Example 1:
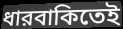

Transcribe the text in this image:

ধারবাকিতেই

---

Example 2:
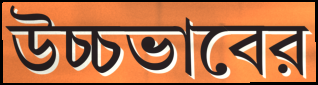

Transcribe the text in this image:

উচ্চভাবের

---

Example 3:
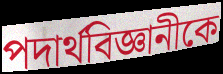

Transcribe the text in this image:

পদার্থবিজ্ঞানীকে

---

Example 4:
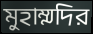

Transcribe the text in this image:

মুহাম্মদির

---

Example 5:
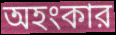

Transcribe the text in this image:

অহংকার